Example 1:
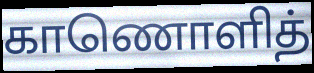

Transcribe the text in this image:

காணொளித்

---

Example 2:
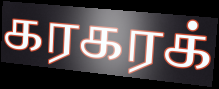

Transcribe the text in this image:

கரகரக்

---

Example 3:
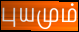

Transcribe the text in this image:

புயமும்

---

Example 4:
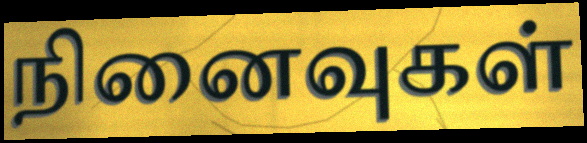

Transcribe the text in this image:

நினைவுகள்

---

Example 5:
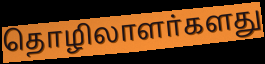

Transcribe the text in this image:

தொழிலாளர்களது